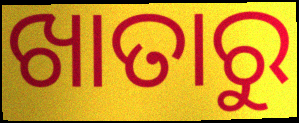
ଖାତାରୁ